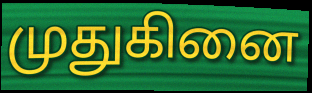
முதுகினை